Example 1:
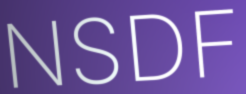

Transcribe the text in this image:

NSDF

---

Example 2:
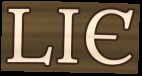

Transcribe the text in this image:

LIE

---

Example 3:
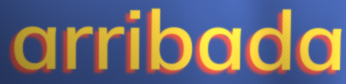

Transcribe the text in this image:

arribada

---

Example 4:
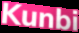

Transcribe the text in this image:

Kunbi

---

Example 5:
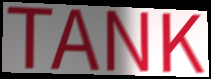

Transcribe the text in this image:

TANK